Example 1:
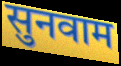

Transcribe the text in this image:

सुनवाम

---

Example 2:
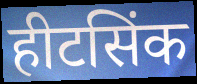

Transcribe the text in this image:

हीटसिंक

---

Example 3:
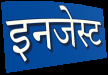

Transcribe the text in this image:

इनजेस्ट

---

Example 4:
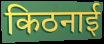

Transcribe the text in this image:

किठनाई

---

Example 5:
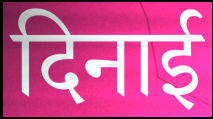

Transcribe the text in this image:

दिनाई